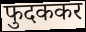
फुदककर